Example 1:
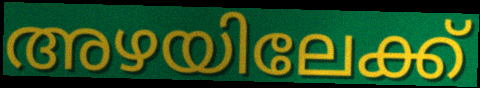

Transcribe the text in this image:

അഴയിലേക്ക്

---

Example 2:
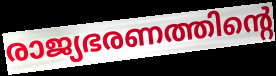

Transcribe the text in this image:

രാജ്യഭരണത്തിന്റെ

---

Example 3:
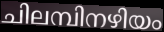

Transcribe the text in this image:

ചിലമ്പിനഴിയം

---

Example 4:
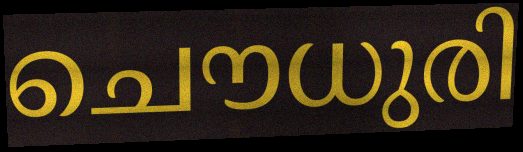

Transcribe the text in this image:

ചൌധുരി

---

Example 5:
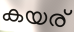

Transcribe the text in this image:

കയര്